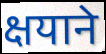
क्षयाने